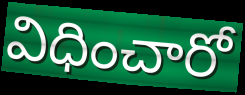
విధించారో